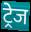
ट्रेज